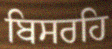
ਬਿਸਰਹਿ